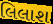
લિલાશ